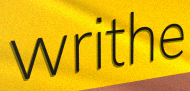
writhe